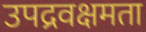
उपद्रवक्षमता